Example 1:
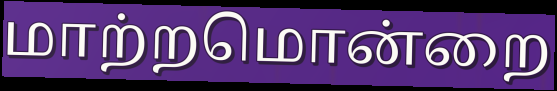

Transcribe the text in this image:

மாற்றமொன்றை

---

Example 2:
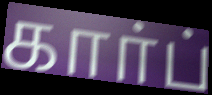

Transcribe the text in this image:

கார்ப்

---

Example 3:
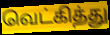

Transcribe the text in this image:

வெட்கித்து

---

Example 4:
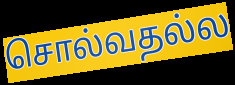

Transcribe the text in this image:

சொல்வதல்ல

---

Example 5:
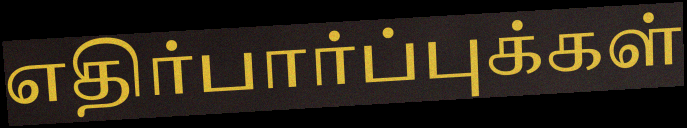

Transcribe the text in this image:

எதிர்பார்ப்புக்கள்